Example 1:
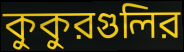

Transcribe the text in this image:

কুকুরগুলির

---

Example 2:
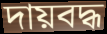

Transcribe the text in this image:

দায়বদ্ধ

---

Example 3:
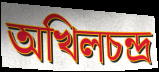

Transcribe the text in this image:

অখিলচন্দ্র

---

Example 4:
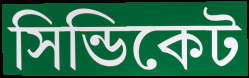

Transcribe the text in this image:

সিন্ডিকেট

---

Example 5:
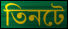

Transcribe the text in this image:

তিনটে